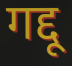
गद्दू